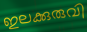
ഇലക്കുരുവി